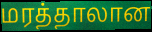
மரத்தாலான